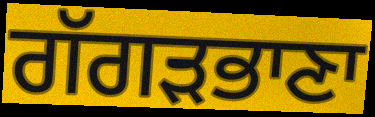
ਗੱਗੜਭਾਣਾ